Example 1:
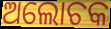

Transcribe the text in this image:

ଅଲୋଚକ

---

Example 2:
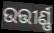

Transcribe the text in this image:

ଉତ୍ତୀର୍ଣ୍ଣ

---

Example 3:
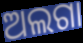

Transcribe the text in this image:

ଅଲଗା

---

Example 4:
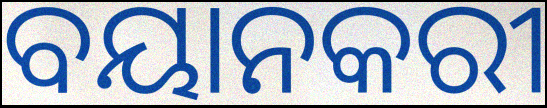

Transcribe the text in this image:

ବୟାନକରୀ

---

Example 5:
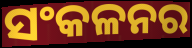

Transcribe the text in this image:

ସଂକଳନର